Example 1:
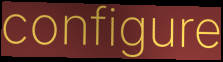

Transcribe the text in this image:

configure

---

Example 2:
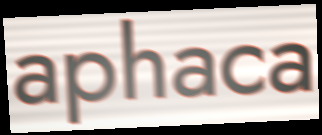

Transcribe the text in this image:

aphaca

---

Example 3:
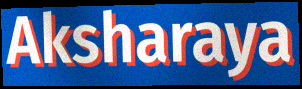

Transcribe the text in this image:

Aksharaya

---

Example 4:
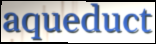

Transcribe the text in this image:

aqueduct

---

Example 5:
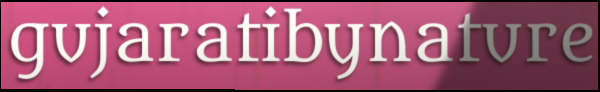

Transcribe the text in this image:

gujaratibynature